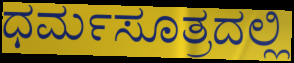
ಧರ್ಮಸೂತ್ರದಲ್ಲಿ